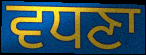
ਵਧਣਾ